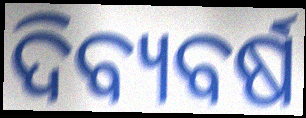
ଦିବ୍ୟବର୍ଷ